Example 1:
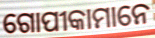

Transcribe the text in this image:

ଗୋପୀକାମାନେ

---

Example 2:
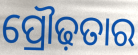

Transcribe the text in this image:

ପ୍ରୌଢ଼ତାର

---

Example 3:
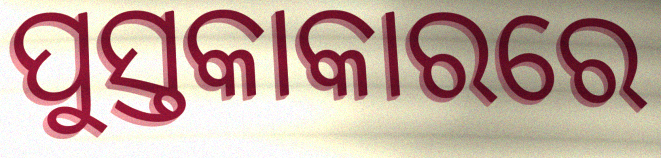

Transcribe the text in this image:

ପୁସ୍ତକାକାରରେ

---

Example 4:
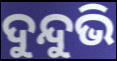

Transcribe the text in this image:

ଦୁନ୍ଦୁଭି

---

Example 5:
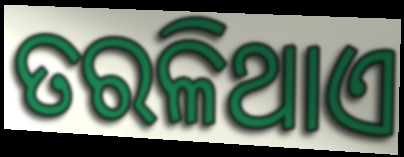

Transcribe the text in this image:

ତରଳିଥାଏ